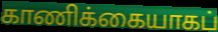
காணிக்கையாகப்